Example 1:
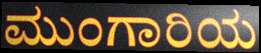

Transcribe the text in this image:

ಮುಂಗಾರಿಯ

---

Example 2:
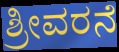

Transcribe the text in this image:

ಶ್ರೀವರನೆ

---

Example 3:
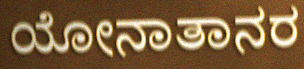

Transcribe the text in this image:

ಯೋನಾತಾನರ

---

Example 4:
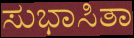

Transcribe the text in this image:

ಸುಭಾಸಿತಾ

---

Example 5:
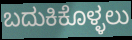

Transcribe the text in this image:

ಬದುಕಿಕೊಳ್ಳಲು